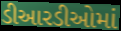
ડીઆરડીઓમાં